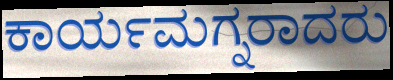
ಕಾರ್ಯಮಗ್ನರಾದರು